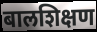
बालशिक्षण